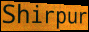
Shirpur